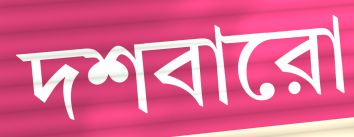
দশবারো